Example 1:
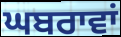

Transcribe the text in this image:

ਘਬਰਾਵਾਂ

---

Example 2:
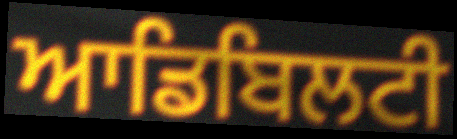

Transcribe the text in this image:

ਆਡਿਬਿਲਟੀ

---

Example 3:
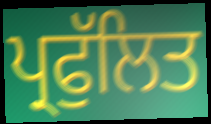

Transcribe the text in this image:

ਪ੍ਰਫੁੱਲਿਤ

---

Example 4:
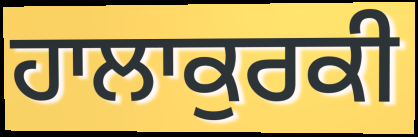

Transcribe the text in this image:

ਹਾਲਾਕੁਰਕੀ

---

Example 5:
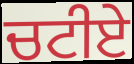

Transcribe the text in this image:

ਚਟੀਏ